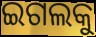
ଇଗଲକୁ